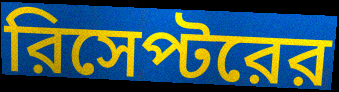
রিসেপ্টরের